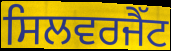
ਸਿਲਵਰਜੈੱਟ